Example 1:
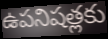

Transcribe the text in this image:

ఉపనిషత్లకు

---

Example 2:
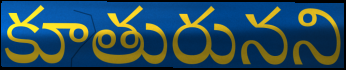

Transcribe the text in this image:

కూతురునని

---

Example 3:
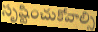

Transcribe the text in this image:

సృష్టించుకోవాల్సి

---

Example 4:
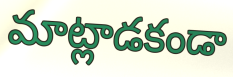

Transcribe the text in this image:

మాట్లాడకండా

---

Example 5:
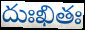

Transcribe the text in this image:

దుఃఖితః